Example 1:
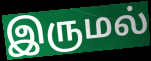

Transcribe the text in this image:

இருமல்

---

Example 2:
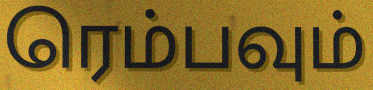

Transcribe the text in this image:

ரெம்பவும்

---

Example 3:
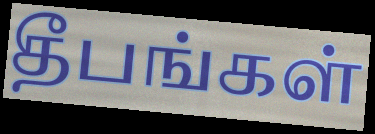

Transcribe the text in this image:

தீபங்கள்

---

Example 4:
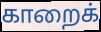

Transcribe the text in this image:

காறைக்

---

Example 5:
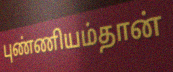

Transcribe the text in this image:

புண்ணியம்தான்